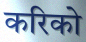
करिको